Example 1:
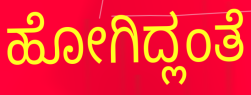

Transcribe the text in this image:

ಹೋಗಿದ್ಲಂತೆ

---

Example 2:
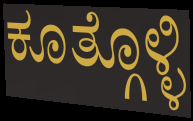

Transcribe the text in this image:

ಕೂತ್ಗೊಳ್ಳಿ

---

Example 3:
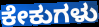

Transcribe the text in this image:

ಕೇಕುಗಳು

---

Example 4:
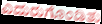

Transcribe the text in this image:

ಎದುರುಗೊಂಡಿತು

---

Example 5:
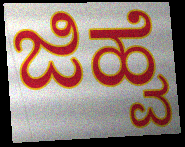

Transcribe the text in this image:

ಜಿಹ್ವೆ